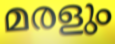
മരളും